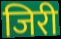
जिरी